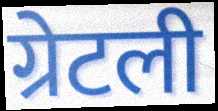
ग्रेटली